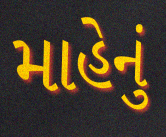
માહેનું